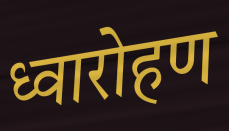
ध्वारोहण